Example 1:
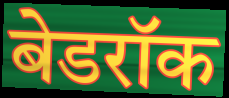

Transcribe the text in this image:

बेडरॉक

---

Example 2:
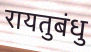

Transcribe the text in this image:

रायतुबंधु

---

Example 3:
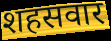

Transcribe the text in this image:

शहसवार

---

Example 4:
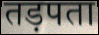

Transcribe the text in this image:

तड़पता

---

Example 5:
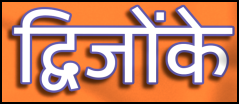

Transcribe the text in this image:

द्विजोंके